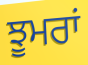
ਝੂਮਰਾਂ